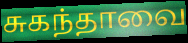
சுகந்தாவை